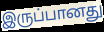
இருப்பானது